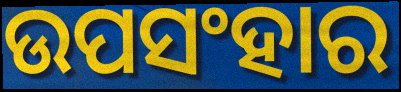
ଉପସଂହାର